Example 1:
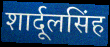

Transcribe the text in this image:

शार्दूलसिंह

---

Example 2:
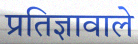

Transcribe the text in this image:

प्रतिज्ञावाले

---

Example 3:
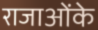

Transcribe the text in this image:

राजाओंके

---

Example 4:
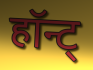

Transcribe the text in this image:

हॉन्ट्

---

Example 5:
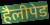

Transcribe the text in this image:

हैलीपेड